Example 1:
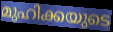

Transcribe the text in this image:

മുഹിക്കയുടെ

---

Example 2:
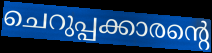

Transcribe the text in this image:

ചെറുപ്പക്കാരന്റെ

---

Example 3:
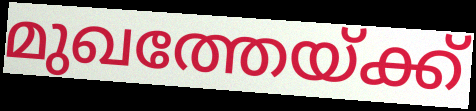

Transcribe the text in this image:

മുഖത്തേയ്ക്ക്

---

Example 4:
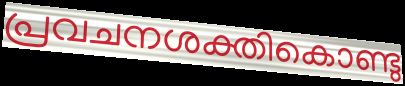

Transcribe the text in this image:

പ്രവചനശക്തികൊണ്ടു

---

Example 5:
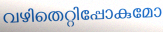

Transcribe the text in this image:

വഴിതെറ്റിപ്പോകുമോ